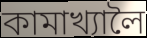
কামাখ্যালৈ